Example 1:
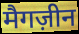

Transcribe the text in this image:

मैगज़ीन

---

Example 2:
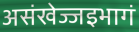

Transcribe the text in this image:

असंखेज्जइभागं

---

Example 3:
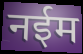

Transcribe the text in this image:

नईम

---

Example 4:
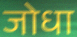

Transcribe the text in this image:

जोधा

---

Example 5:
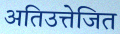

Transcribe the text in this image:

अतिउत्तेजित